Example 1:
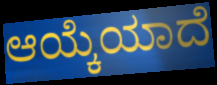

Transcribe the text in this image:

ಆಯ್ಕೆಯಾದೆ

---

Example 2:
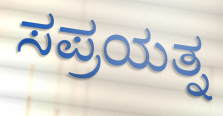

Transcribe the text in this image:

ಸಪ್ರಯತ್ನ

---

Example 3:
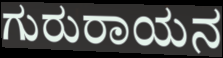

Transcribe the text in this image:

ಗುರುರಾಯನ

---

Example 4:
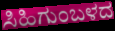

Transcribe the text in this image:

ಸಿಹಿಗುಂಬಳದ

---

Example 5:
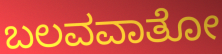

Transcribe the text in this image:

ಬಲವವಾತೋ